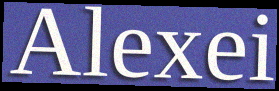
Alexei